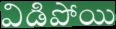
విడిపోయి